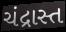
ચંદ્રાસ્ત